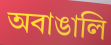
অবাঙালি